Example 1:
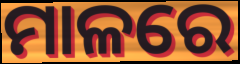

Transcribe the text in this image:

ମାଳରେ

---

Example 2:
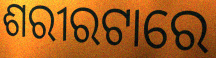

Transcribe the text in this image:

ଶରୀରଟାରେ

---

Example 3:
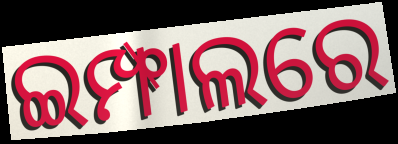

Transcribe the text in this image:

ଇମ୍ଫାଲରେ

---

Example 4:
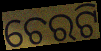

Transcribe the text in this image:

ଚେରଟି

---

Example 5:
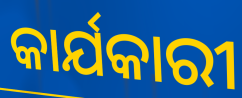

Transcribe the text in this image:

କାର୍ଯକାରୀ